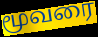
மூவரை